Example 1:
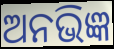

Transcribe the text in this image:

ଅନଭିଜ୍ଞ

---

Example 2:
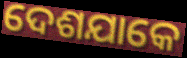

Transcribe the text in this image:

ଦେଶଯାକେ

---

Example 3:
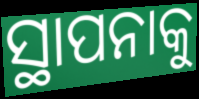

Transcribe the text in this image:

ସ୍ଥାପନାକୁ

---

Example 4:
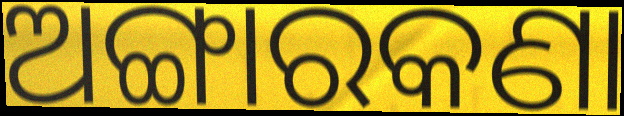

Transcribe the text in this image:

ଅଙ୍ଗାରକଣା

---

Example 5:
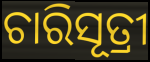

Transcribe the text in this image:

ଚାରିସୂତ୍ରୀ